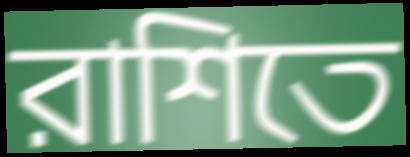
রাশিতে